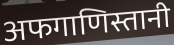
अफगाणिस्तानी